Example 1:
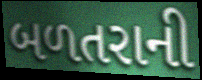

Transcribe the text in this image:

બળતરાની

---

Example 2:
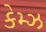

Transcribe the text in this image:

કેમ્ઝ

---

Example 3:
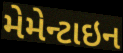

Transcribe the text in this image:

મેમેન્ટાઇન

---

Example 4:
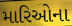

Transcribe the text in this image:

મારિઓના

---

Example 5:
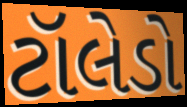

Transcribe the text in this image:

ટૉલેડો